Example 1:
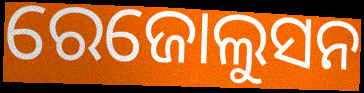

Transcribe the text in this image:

ରେଜୋଲୁସନ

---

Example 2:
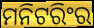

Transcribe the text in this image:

ମନିଟରିଂର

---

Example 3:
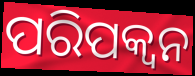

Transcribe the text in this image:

ପରିପକ୍ବନ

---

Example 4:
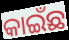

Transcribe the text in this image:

କାଇଁଛ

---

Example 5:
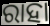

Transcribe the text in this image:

ରାହା